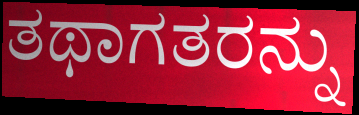
ತಥಾಗತರನ್ನು